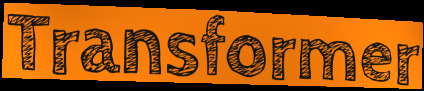
Transformer